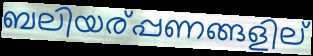
ബലിയര്പ്പണങ്ങളില്